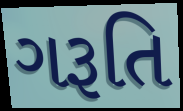
ગરૂતિ